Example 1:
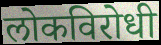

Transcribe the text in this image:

लोकविरोधी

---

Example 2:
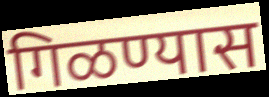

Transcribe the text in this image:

गिळण्यास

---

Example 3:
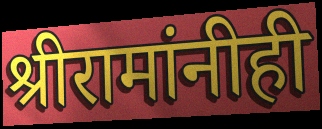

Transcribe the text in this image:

श्रीरामांनीही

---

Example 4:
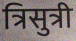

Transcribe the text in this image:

त्रिसुत्री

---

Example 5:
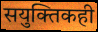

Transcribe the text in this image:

सयुक्तिकही